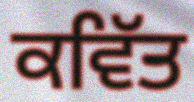
ਕਵਿੱਤ